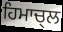
ਹਿਮਾਚ੍ਲ